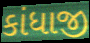
કાંધાજી